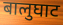
बालुघाट